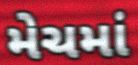
મેચમાં